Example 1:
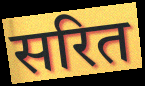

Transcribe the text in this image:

सरित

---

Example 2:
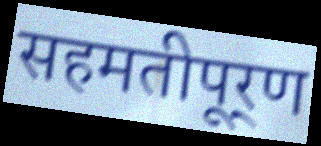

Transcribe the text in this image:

सहमतीपूर्ण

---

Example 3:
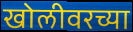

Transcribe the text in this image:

खोलीवरच्या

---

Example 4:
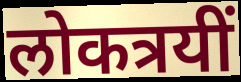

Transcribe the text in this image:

लोकत्रयीं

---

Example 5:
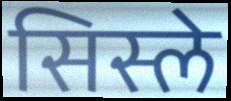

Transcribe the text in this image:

सिस्ले